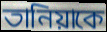
তানিয়াকে